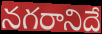
నగరానిదే